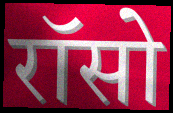
रॉसो